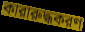
কারারুদ্ধকরণ